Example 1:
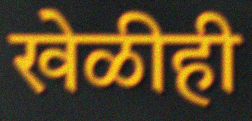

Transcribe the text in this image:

खेळीही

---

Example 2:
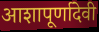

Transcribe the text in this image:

आशापूर्णादेवी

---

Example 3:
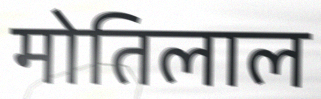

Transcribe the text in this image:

मोतिलाल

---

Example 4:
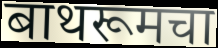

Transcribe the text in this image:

बाथरूमचा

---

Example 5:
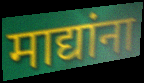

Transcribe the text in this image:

माद्यांना